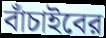
বাঁচাইবের